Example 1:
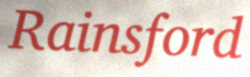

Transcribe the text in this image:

Rainsford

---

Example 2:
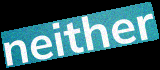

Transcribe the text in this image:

neither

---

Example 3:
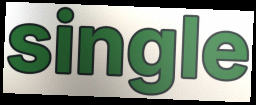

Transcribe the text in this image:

single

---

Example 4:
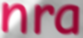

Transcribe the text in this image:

nra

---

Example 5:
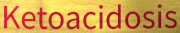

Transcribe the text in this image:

Ketoacidosis